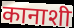
कानाशी